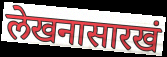
लेखनासारखं